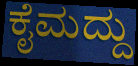
ಕೈಮದ್ದು